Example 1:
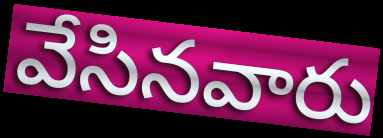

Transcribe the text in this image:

వేసినవారు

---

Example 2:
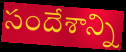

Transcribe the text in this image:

సందేశాన్ని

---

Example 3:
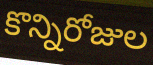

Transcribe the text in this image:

కొన్నిరోజుల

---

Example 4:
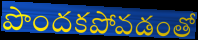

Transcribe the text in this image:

పొందకపోవడంతో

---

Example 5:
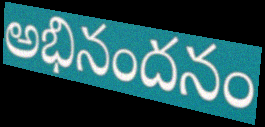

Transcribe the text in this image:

అభినందనం